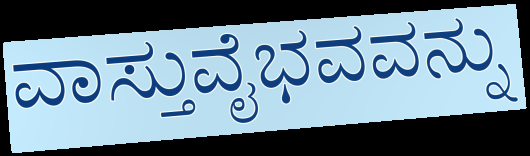
ವಾಸ್ತುವೈಭವವನ್ನು